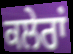
ਕਲੇਰਾਂ